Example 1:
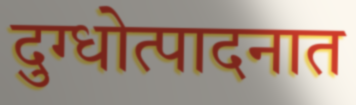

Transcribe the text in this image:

दुग्धोत्पादनात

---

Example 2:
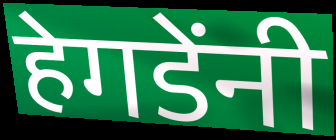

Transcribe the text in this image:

हेगडेंनी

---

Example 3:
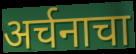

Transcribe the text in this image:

अर्चनाचा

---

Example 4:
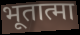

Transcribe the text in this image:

भूतात्मा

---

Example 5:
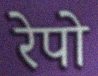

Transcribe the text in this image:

रेपो